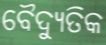
ବୈଦ୍ୟୁତିକ